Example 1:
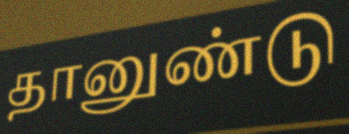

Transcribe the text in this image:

தானுண்டு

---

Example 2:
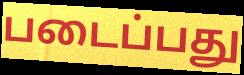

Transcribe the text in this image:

படைப்பது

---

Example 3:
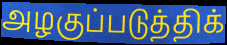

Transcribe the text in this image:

அழகுப்படுத்திக்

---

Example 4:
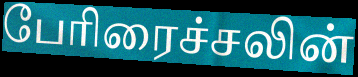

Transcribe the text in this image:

பேரிரைச்சலின்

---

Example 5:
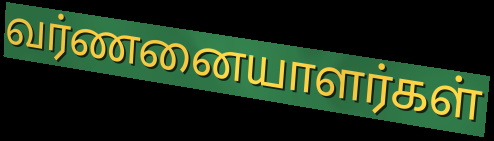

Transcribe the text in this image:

வர்ணனையாளர்கள்